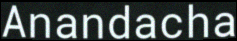
Anandacha